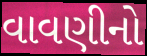
વાવણીનો